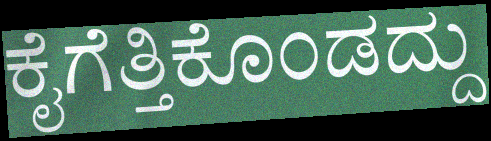
ಕೈಗೆತ್ತಿಕೊಂಡದ್ದು